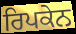
ਰਿਪਕੇਨ